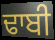
ਢਾਬੀ